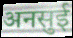
अनसुई